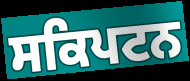
ਸਕਿਪਟਨ